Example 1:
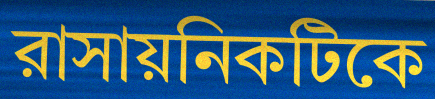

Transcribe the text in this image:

রাসায়নিকটিকে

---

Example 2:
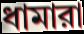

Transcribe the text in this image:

ধামারা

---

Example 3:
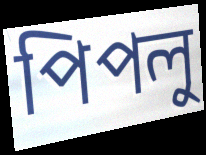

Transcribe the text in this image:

পিপলু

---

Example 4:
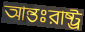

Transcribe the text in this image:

আন্তঃরাষ্ট্র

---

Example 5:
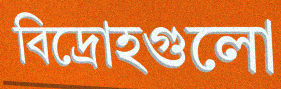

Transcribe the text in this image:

বিদ্রোহগুলো